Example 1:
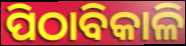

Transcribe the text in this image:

ପିଠାବିକାଳି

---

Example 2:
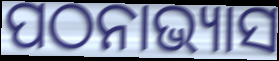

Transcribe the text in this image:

ପଠନାଭ୍ୟାସ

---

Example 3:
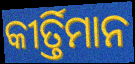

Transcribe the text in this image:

କୀର୍ତ୍ତିମାନ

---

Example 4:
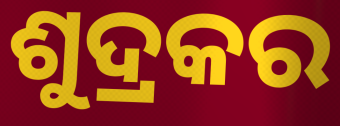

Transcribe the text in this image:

ଶୁଦ୍ରକର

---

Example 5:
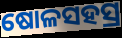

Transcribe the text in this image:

ଷୋଳସହସ୍ର